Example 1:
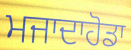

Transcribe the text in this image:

ਮਜਾਦਾਹੋਡਾ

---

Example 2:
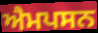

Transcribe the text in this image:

ਐਮਪਸਨ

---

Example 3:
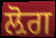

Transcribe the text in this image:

ਲ਼ੋਗ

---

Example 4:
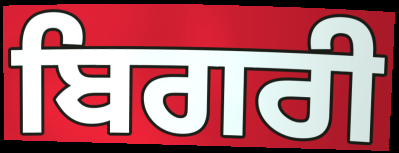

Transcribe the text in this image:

ਬਿਗਰੀ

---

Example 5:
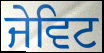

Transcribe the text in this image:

ਜੇਵਿਟ